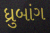
ધ્રુબાંગ